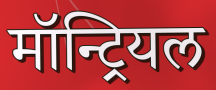
मॉन्ट्रियल